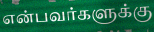
என்பவர்களுக்கு